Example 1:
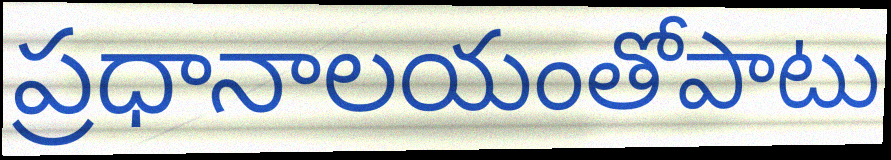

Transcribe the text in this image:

ప్రధానాలయంతోపాటు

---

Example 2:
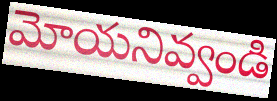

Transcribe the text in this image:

మోయనివ్వండి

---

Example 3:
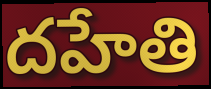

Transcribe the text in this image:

దహేతి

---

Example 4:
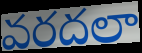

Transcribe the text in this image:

వరదలా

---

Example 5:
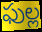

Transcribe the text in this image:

ఫుల్ల